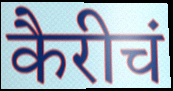
कैरीचं